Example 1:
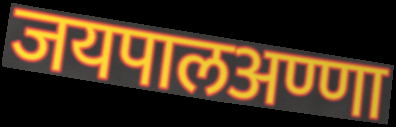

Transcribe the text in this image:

जयपालअण्णा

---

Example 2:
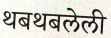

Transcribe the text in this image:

थबथबलेली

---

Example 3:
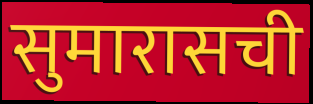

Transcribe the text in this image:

सुमारासची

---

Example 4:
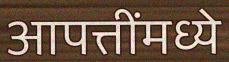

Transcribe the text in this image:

आपत्तींमध्ये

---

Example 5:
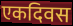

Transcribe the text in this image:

एकदिवस